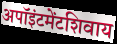
अपॉइंटमेंटशिवाय